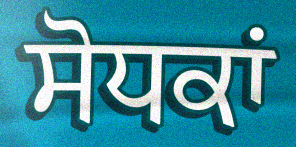
ਸੋਧਕਾਂ